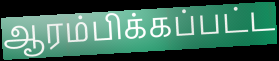
ஆரம்பிக்கப்பட்ட